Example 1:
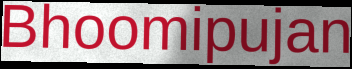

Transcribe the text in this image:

Bhoomipujan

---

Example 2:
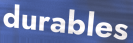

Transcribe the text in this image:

durables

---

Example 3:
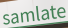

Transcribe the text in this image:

samlate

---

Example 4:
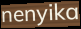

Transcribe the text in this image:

nenyika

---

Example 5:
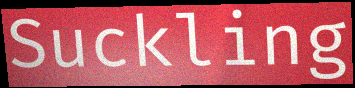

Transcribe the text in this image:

Suckling